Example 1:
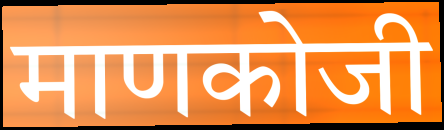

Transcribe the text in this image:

माणकोजी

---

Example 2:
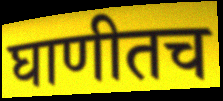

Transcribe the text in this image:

घाणीतच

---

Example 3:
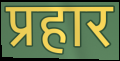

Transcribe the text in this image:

प्रहार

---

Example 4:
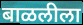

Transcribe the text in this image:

बाळलीला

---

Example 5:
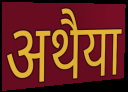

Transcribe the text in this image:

अथैया